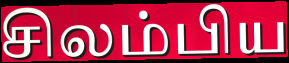
சிலம்பிய